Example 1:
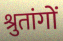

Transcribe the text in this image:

श्रुतांगों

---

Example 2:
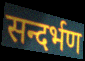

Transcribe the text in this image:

सन्दर्भण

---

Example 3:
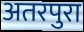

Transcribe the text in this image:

अतरपुरा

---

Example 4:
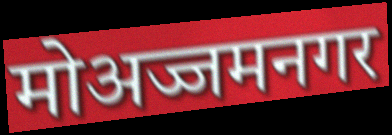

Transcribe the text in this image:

मोअज्जमनगर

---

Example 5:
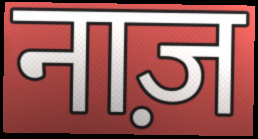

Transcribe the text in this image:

नाज़